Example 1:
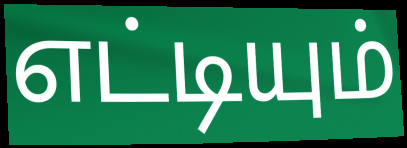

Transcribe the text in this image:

எட்டியும்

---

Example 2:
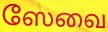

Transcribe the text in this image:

ஸேவை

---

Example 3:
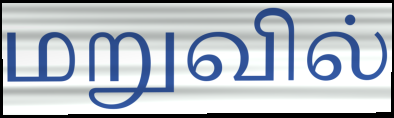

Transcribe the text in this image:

மறுவில்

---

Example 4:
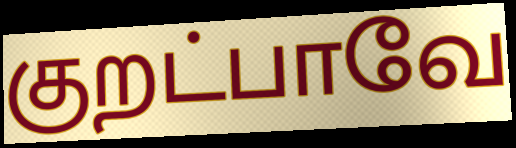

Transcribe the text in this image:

குறட்பாவே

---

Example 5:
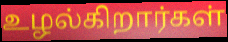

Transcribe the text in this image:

உழல்கிறார்கள்